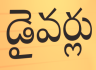
డైవర్లు